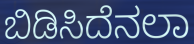
ಬಿಡಿಸಿದೆನಲಾ